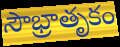
సౌభ్రాతృకం